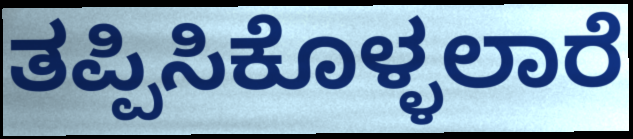
ತಪ್ಪಿಸಿಕೊಳ್ಳಲಾರೆ